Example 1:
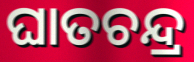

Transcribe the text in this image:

ଘାତଚନ୍ଦ୍ର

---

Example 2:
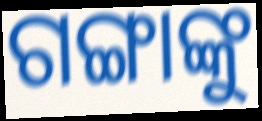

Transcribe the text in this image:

ଗଙ୍ଗାଙ୍କୁ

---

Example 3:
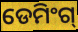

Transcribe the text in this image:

ଡେମିଂଗ୍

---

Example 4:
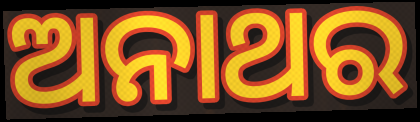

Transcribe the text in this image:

ଅନାଥର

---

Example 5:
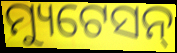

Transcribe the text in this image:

ମ୍ୟୁଟେସନ୍